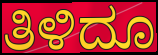
ತಿಳಿದೂ